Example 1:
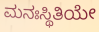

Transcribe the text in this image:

ಮನಃಸ್ಥಿತಿಯೇ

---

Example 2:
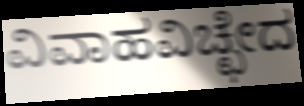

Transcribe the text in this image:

ವಿವಾಹವಿಚ್ಛೇದ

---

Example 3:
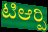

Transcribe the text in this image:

ಟಿಆರ್‍ಪಿ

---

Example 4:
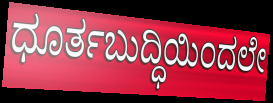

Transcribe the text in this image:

ಧೂರ್ತಬುದ್ಧಿಯಿಂದಲೇ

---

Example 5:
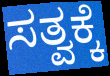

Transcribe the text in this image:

ಸತ್ವಕ್ಕೆ